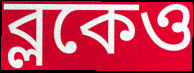
ব্লকেও